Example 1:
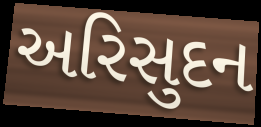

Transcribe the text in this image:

અરિસુદન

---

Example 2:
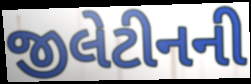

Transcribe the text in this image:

જીલેટીનની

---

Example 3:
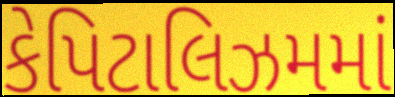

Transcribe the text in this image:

કેપિટાલિઝમમાં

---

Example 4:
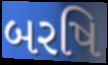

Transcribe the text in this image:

બરષિ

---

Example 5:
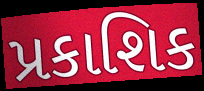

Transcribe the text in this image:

પ્રકાશિક